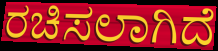
ರಚಿಸಲಾಗಿದೆ